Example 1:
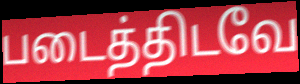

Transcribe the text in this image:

படைத்திடவே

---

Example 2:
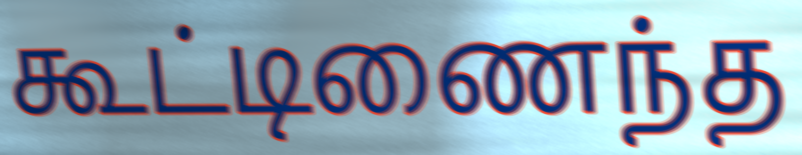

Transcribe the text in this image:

கூட்டிணைந்த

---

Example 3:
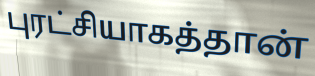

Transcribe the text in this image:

புரட்சியாகத்தான்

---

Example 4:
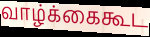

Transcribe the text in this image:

வாழ்க்கைகூட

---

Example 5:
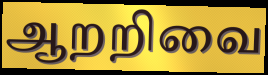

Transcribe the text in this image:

ஆறறிவை